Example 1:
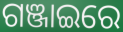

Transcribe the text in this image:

ଗଞ୍ଜାଇରେ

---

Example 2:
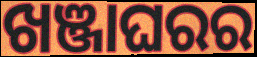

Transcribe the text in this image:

ଖଞ୍ଜାଘରର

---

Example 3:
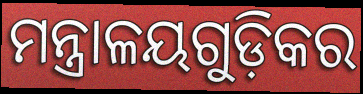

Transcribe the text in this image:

ମନ୍ତ୍ରାଳୟଗୁଡ଼ିକର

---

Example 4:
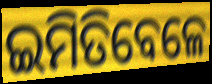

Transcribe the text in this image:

ଇମିତିବେଳେ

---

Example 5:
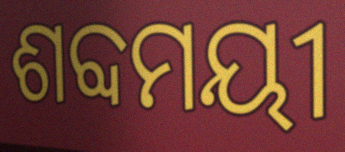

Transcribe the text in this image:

ଶବ୍ଦମୟୀ